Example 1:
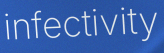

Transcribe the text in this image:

infectivity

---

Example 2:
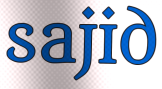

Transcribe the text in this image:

sajid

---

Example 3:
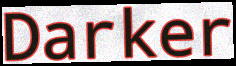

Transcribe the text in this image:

Darker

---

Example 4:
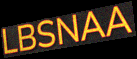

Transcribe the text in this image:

LBSNAA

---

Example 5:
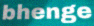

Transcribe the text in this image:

bhenge